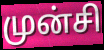
முன்சி